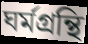
ঘর্মগ্রন্থি